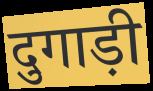
दुगाड़ी